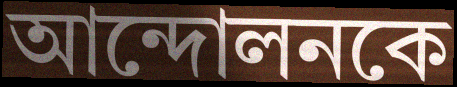
আন্দোলনকে